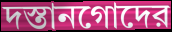
দস্তানগোদের